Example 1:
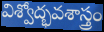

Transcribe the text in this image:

విశ్వోద్భవశాస్త్రం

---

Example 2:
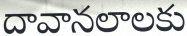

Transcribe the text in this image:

దావానలాలకు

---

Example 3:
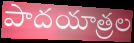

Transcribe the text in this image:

పాదయాత్రల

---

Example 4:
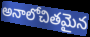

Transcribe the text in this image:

అనాలోచితమైన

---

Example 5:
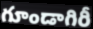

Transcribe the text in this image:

గూండాగిరీ